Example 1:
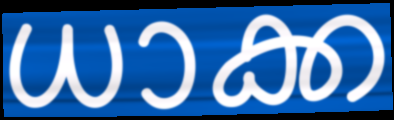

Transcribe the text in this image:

ധാക്ക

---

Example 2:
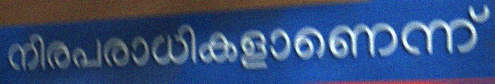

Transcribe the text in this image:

നിരപരാധികളാണെന്ന്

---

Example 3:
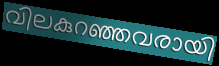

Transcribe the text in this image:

വിലകുറഞ്ഞവരായി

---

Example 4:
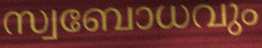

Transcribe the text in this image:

സ്വബോധവും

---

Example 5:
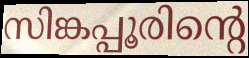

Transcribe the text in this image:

സിങ്കപ്പൂരിന്റെ